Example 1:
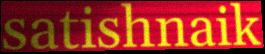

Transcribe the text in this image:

satishnaik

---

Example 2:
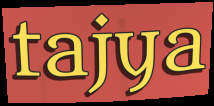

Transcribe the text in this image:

tajya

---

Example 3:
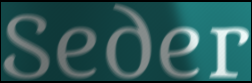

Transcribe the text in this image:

Seder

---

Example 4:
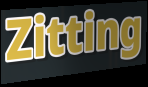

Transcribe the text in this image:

Zitting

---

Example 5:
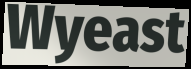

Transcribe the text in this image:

Wyeast